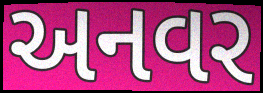
અનવર